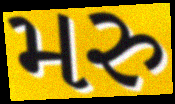
મરુ